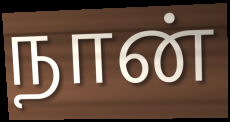
நான்